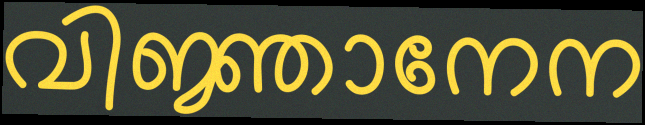
വിജ്ഞാനേന